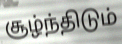
சூழ்ந்திடும்